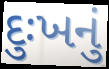
દુઃખનું